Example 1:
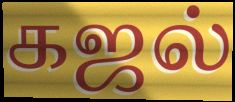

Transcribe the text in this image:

கஜல்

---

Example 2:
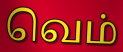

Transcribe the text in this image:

வெம்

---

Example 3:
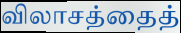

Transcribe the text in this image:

விலாசத்தைத்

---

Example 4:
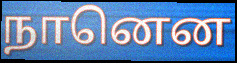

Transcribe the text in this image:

நானென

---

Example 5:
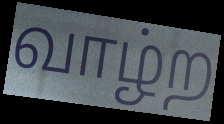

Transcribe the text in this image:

வாழ்ற